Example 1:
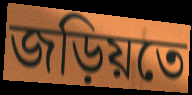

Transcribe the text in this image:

জড়িয়তে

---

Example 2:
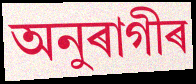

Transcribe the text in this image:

অনুৰাগীৰ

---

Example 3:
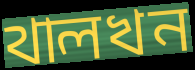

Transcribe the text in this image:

থালখন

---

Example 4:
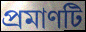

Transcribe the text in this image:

প্ৰমাণটি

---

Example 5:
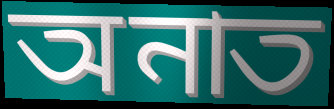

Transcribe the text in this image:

অনাত